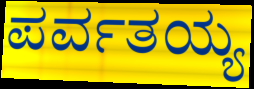
ಪರ್ವತಯ್ಯ